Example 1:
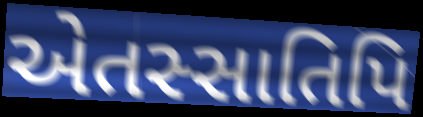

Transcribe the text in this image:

એતસ્સાતિપિ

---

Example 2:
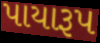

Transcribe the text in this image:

પાયારૂપ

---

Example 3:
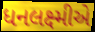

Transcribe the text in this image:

ધનલક્ષ્મીએ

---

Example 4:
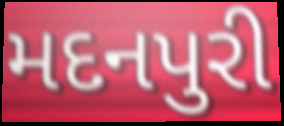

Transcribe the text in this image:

મદનપુરી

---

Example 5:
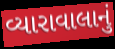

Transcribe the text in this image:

વ્યારાવાલાનું